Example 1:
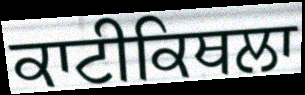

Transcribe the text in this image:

ਕਾਟੀਕਿਥਲਾ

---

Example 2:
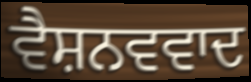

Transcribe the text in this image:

ਵੈਸ਼ਨਵਵਾਦ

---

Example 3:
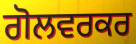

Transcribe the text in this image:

ਗੋਲਵਰਕਰ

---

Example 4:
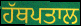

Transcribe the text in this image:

ਹੱਥਪਤਾਲ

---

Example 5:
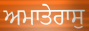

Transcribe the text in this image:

ਅਮਾਤੇਰਾਸੁ